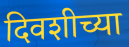
दिवशीच्या